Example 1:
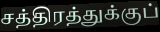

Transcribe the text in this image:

சத்திரத்துக்குப்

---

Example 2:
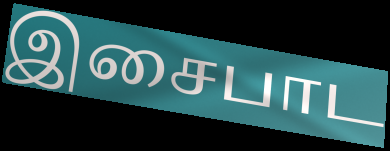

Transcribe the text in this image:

இசைபாட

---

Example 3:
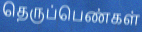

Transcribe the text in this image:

தெருப்பெண்கள்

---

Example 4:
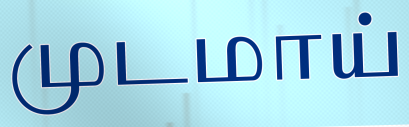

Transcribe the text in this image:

முடமாய்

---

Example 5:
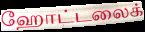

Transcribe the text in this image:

ஹோட்டலைக்